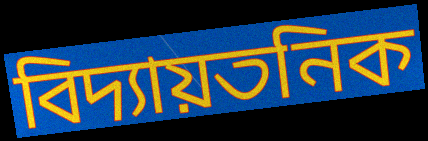
বিদ্যায়তনিক